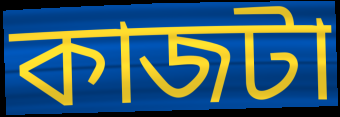
কাজটা